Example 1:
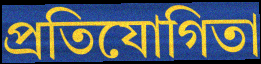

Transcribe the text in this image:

প্ৰতিযোগিতা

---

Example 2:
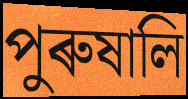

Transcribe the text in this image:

পুৰুষালি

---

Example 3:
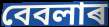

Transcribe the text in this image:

বেবলাৰ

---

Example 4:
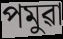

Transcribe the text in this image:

পমুৱা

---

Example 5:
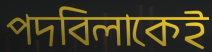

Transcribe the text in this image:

পদবিলাকেই